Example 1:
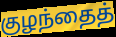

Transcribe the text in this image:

குழந்தைத்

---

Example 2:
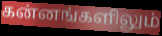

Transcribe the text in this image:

கன்னங்களிலும்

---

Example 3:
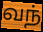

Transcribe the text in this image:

வந்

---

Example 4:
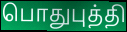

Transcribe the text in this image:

பொதுபுத்தி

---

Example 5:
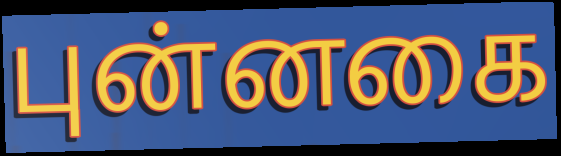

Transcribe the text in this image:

புன்னகை